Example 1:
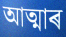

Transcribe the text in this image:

আত্মাৰ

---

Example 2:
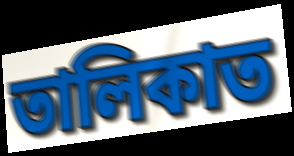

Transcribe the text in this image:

তালিকাত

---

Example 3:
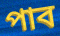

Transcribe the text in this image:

পাব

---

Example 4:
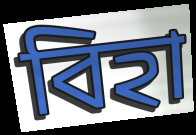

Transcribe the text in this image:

বিহা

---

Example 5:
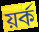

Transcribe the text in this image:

য়ৰ্ক